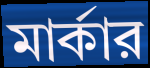
মার্কার